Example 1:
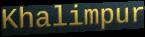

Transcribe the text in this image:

Khalimpur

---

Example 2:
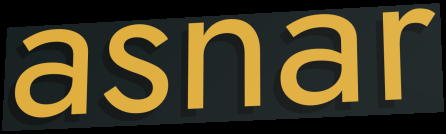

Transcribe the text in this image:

asnar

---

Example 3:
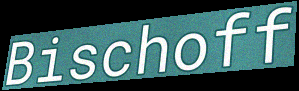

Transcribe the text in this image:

Bischoff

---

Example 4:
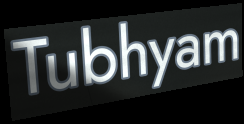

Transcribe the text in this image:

Tubhyam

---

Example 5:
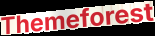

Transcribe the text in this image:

Themeforest